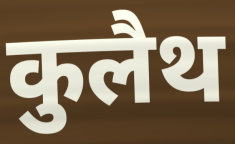
कुलैथ